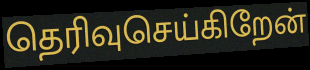
தெரிவுசெய்கிறேன்